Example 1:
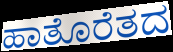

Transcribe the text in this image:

ಹಾತೊರೆತದ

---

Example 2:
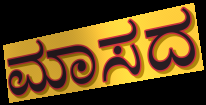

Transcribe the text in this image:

ಮಾಸದ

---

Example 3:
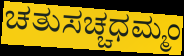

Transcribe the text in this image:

ಚತುಸಚ್ಚಧಮ್ಮಂ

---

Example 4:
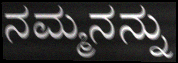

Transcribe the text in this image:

ನಮ್ಮನನ್ನು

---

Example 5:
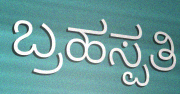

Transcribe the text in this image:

ಬ್ರಹಸ್ಪತಿ